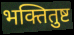
भक्तितुष्ट